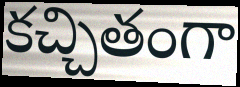
కచ్చితంగా